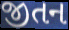
જીતન